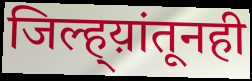
जिल्ह्य़ांतूनही